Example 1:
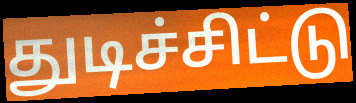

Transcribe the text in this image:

துடிச்சிட்டு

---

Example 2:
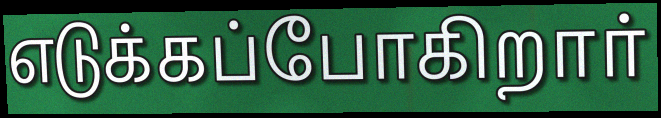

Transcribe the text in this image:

எடுக்கப்போகிறார்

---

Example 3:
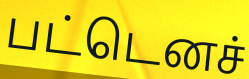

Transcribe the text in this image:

பட்டெனச்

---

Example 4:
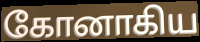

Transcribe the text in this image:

கோனாகிய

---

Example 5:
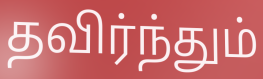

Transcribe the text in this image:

தவிர்ந்தும்